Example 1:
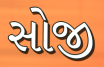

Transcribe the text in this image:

સોજી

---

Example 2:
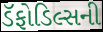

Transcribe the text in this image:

ડૅફોડિલ્સની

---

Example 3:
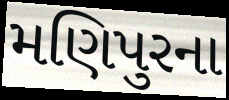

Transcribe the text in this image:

મણિપુરના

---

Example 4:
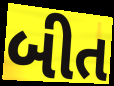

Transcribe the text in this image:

બીત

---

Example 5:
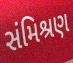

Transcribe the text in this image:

સંમિશ્રણ